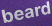
beard